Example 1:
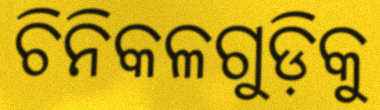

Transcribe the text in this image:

ଚିନିକଳଗୁଡ଼ିକୁ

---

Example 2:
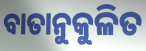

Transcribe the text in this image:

ବାତାନୁକୁଳିତ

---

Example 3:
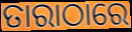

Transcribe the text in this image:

ତାରାଠାରେ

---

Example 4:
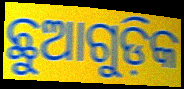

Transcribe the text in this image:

ଛୁଆଗୁଡ଼ିକ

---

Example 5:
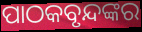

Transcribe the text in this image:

ପାଠକବୃନ୍ଦଙ୍କର